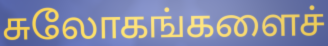
சுலோகங்களைச்